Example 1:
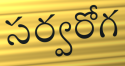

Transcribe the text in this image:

సర్వరోగ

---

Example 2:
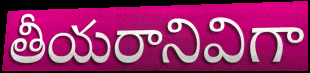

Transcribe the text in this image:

తీయరానివిగా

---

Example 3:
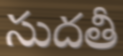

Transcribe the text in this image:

సుదతీ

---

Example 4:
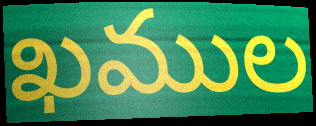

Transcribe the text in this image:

ఖముల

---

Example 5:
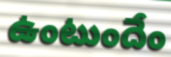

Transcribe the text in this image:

ఉంటుందేం